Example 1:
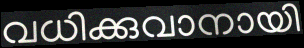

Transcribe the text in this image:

വധിക്കുവാനായി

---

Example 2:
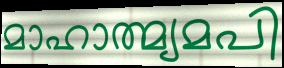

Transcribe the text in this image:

മാഹാത്മ്യമപി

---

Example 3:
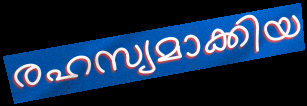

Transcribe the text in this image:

രഹസ്യമാക്കിയ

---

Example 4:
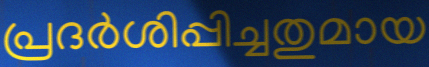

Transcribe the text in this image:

പ്രദർശിപ്പിച്ചതുമായ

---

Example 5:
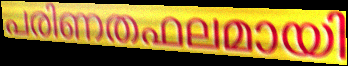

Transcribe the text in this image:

പരിണതഫലമായി